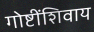
गोष्टींशिवाय